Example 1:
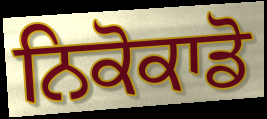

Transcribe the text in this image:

ਨਿਕੋਕਾਡੋ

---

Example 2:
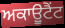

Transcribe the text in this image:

ਅਕਾਉੂਂਟੈਂਟ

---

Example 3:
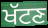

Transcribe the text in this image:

ਖੱਟਣ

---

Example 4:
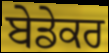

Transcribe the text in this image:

ਬੇਡੇਕਰ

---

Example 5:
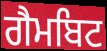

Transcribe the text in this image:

ਗੈਮਬਿਟ